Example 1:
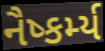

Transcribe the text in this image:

નૈષ્કર્મ્ય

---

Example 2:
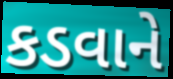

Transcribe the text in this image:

કડવાને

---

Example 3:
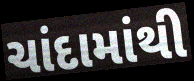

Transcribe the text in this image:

ચાંદામાંથી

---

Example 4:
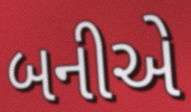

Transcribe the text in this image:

બનીએ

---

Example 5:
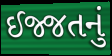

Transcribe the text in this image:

ઈજ્જતનું